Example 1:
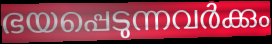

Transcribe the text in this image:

ഭയപ്പെടുന്നവർക്കും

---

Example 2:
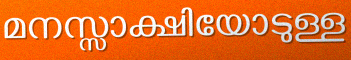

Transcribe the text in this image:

മനസ്സാക്ഷിയോടുള്ള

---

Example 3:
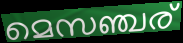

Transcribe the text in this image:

മെസഞ്ചര്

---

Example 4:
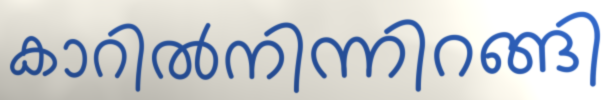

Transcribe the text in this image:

കാറിൽനിന്നിറങ്ങി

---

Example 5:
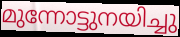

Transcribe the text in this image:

മുന്നോട്ടുനയിച്ചു